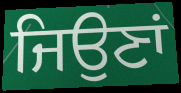
ਜਿਉਣਾਂ